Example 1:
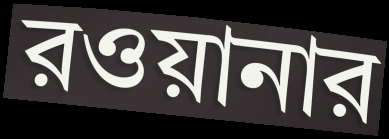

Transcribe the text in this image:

রওয়ানার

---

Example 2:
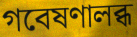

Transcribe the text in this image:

গবেষণালব্ধ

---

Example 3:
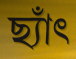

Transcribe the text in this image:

ছ্যাঁৎ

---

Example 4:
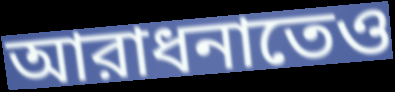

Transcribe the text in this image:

আরাধনাতেও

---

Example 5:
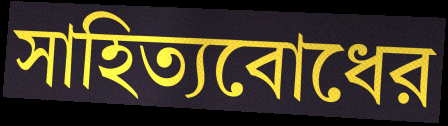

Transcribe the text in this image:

সাহিত্যবোধের